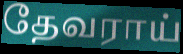
தேவராய்